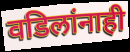
वडिलांनाही